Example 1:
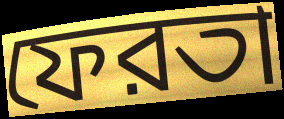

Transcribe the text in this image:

ফেরতা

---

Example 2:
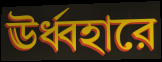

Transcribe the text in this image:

ঊর্ধ্বহারে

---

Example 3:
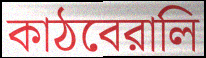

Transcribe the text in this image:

কাঠবেরালি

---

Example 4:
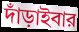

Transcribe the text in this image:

দাঁড়াইবার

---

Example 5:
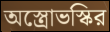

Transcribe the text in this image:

অস্ত্রোভস্কির